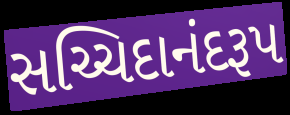
સચ્ચિદાનંદરૂપ